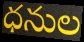
ధనుల